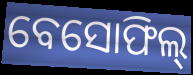
ବେସୋଫିଲ୍